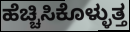
ಹೆಚ್ಚಿಸಿಕೊಳ್ಳುತ್ತ